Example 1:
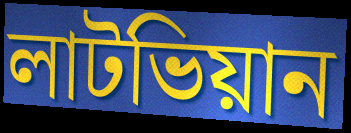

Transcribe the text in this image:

লাটভিয়ান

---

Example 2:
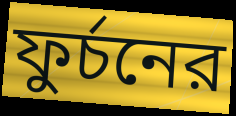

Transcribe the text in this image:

ফুর্চনের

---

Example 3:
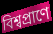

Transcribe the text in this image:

বিশ্বপ্রাণে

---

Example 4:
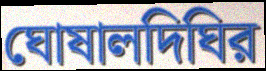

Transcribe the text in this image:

ঘোষালদিঘির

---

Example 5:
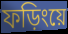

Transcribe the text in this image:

ফড়িংয়ে